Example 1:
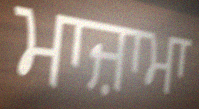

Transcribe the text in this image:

ਮਾਜ਼ਾਮਾ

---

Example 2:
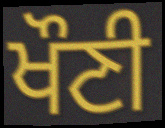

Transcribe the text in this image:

ਖੌਣੀ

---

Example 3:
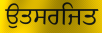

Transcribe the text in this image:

ਉਤਸਰਜਿਤ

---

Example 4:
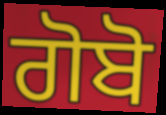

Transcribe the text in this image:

ਗੋਬੋ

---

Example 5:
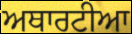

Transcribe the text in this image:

ਅਥਾਰਟੀਆ